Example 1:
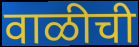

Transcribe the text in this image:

वाळीची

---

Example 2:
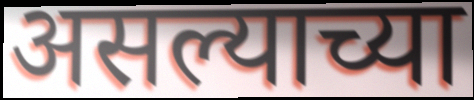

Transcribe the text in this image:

असल्याच्या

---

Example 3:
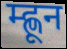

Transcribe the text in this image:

म्ह्णून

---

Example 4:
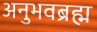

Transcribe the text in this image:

अनुभवब्रह्म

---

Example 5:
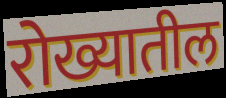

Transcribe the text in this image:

रोख्यातील